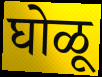
घोळू